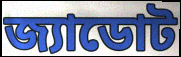
জ্যাডোট